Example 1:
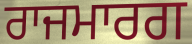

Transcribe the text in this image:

ਰਾਜਮਾਰਗ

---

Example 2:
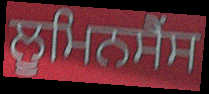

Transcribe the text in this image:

ਲੂਮਿਨਸੈਂਸ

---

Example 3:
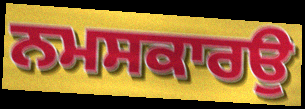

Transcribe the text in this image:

ਨਮਸਕਾਰਉ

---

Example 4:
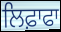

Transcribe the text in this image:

ਲਿਫ਼ਾਫਾ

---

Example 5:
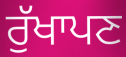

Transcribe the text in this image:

ਰੁੱਖਾਪਣ